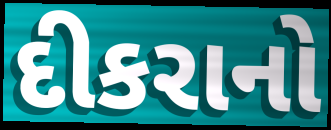
દીકરાનો